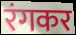
रंगकर